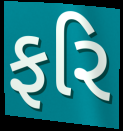
ફરિ